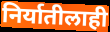
निर्यातीलाही